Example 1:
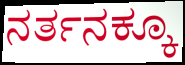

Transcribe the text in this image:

ನರ್ತನಕ್ಕೂ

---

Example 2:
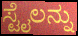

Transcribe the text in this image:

ಸ್ಟೈಲನ್ನು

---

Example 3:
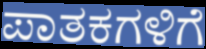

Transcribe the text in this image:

ಪಾತಕಗಳಿಗೆ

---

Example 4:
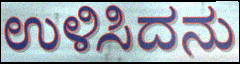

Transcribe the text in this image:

ಉಳಿಸಿದನು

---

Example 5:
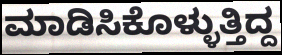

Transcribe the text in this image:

ಮಾಡಿಸಿಕೊಳ್ಳುತ್ತಿದ್ದ